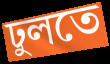
ঢুলতে